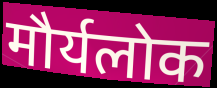
मौर्यलोक